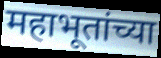
महाभूतांच्या